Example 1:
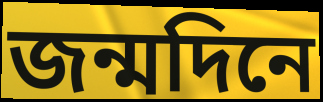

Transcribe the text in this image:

জন্মদিনে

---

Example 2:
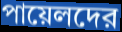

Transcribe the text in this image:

পায়েলদের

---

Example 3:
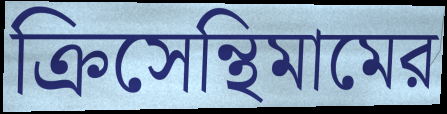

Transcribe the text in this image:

ক্রিসেন্থিমামের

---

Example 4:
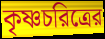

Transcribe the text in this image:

কৃষ্ণচরিত্রের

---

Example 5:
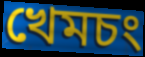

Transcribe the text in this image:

খেমচং